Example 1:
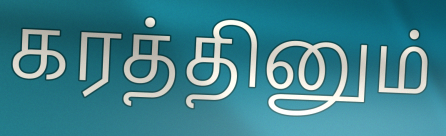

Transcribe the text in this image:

கரத்தினும்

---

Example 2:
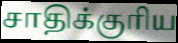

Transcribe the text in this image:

சாதிக்குரிய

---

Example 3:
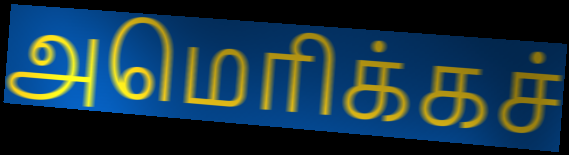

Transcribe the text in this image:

அமெரிக்கச்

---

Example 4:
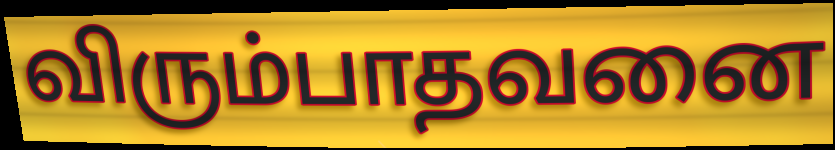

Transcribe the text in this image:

விரும்பாதவனை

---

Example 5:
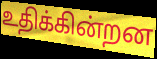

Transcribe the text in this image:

உதிக்கின்றன